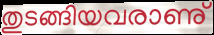
തുടങ്ങിയവരാണു്